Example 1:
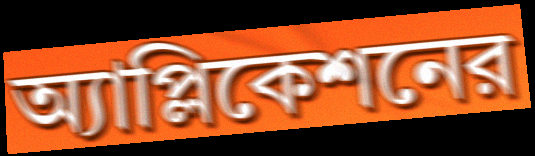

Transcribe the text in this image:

অ্যাপ্লিকেশনের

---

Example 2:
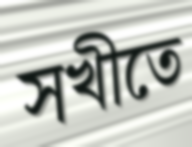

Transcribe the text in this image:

সখীতে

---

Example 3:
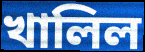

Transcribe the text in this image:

খালিল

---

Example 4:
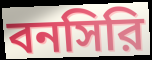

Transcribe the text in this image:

বনসিরি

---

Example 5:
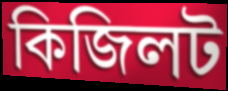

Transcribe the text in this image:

কিজিলট